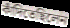
কাঁদিতেছিলেন